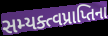
સમ્યક્ત્વપ્રાપ્તિના